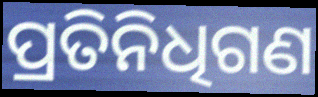
ପ୍ରତିନିଧିଗଣ